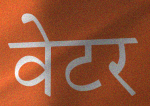
वेटर